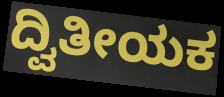
ದ್ವಿತೀಯಕ